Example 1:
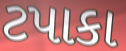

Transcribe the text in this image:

ટપાકા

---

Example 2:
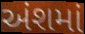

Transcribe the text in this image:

અંશમાં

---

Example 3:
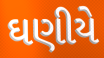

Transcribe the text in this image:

ઘણીયે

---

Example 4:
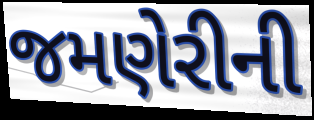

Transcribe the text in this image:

જમણેરીની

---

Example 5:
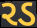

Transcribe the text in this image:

રડ